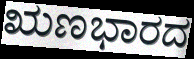
ಋಣಭಾರದ